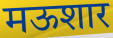
मऊशार